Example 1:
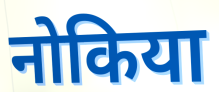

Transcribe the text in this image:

नोकिया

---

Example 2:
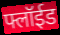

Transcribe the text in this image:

फ्लॉईड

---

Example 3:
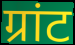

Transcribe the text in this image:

ग्रांट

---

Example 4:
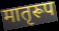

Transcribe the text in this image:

मातृरूप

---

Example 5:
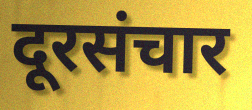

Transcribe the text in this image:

दूरसंचार